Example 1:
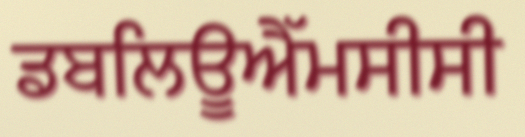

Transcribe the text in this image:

ਡਬਲਿਊਐੱਮਸੀਸੀ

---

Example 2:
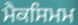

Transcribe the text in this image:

ਮੈਕਸਿਮਮ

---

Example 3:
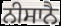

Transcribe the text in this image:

ਨੀਸਾਨੈ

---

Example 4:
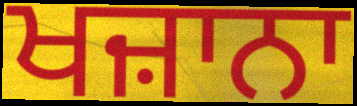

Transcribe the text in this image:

ਖਜ਼ਾਨਾ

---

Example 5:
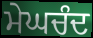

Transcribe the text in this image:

ਮੇਘਚੰਦ